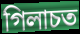
গিলাচত